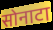
सोनाटा